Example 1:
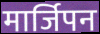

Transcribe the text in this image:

मार्जिपन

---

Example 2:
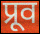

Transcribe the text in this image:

प्रूव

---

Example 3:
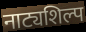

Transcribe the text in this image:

नाट्यशिल्प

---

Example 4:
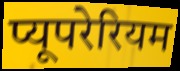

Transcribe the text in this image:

प्यूपरेरियम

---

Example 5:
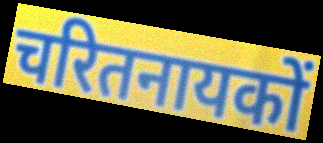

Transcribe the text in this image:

चरितनायकों